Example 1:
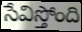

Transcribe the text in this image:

సేవిస్తోంది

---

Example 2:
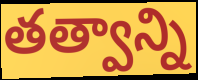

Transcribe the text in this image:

తత్వాన్ని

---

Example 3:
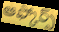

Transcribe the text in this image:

ఆఫ్కోర్స్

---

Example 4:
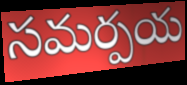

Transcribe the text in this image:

సమర్పయ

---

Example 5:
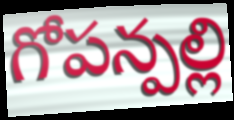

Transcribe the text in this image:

గోపన్పల్లి